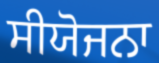
ਸੀਯੋਜਨਾ